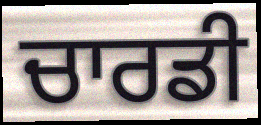
ਚਾਰਡੀ